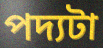
পদ্যটা